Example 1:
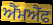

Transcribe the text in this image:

ਐੱਮਐੱਫ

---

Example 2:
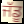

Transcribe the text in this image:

ਜੱਡੂ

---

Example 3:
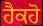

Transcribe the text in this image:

ਹੈਕਹੋ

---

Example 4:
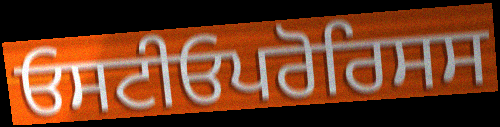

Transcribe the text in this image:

ਓਸਟੀਓਪਰੋਰਿਸਸ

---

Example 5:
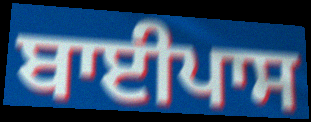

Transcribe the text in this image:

ਬਾਈਪਾਸ